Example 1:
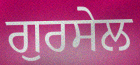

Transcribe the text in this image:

ਗੁਰਸੇਲ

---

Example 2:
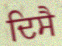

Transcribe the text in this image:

ਦਿਸੈ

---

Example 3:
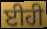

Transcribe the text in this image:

ਈਹੀ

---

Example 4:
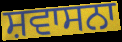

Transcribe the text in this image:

ਸ਼ਵਾਸਨਾ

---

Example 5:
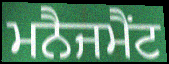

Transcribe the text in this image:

ਮਨੈਜਮੈਂਟ